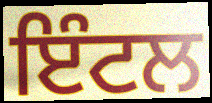
ਇੰਟਲ